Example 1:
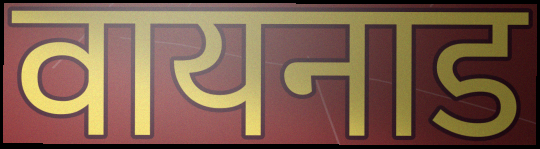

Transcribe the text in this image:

वायनाड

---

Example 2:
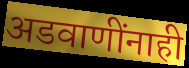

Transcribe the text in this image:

अडवाणींनाही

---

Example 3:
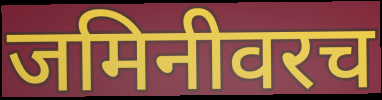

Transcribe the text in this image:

जमिनीवरच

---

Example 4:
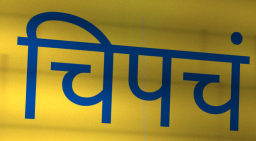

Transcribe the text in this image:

चिपचं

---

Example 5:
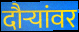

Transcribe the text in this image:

दौर्‍यांवर